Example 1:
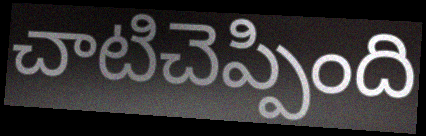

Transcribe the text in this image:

చాటిచెప్పింది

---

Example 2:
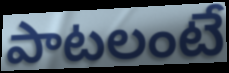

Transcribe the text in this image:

పాటలంటే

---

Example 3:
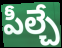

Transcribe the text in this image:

పీల్చే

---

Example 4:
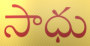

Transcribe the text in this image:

సాధు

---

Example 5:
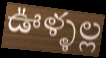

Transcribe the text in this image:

ఊళ్ళల్ల